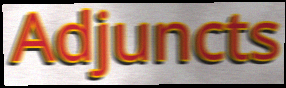
Adjuncts